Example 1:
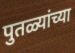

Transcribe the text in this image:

पुतळ्यांच्या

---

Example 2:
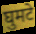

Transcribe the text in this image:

घुमटे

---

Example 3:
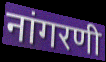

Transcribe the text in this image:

नांगरणी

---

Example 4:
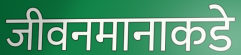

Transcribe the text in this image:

जीवनमानाकडे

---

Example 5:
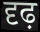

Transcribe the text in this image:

दृढ़